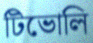
টিভোলি